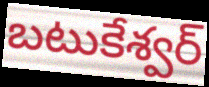
బటుకేశ్వర్